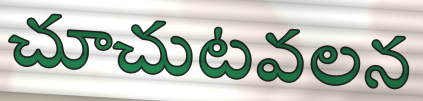
చూచుటవలన